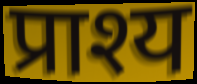
प्राश्य